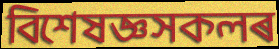
বিশেষজ্ঞসকলৰ